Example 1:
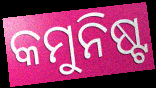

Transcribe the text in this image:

କମୁନିଷ୍ଟ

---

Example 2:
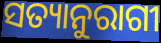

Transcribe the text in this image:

ସତ୍ୟାନୁରାଗୀ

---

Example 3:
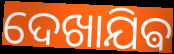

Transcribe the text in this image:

ଦେଖାଯିଵ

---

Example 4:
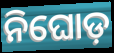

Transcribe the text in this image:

ନିଘୋଡ଼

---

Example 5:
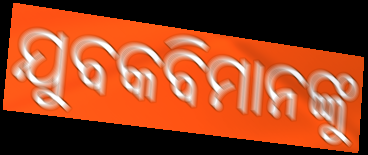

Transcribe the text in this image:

ଯୁବକବିମାନଙ୍କୁ